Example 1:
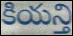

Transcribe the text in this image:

కియన్తి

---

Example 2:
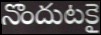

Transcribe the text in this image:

నొందుటకై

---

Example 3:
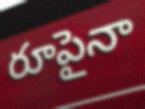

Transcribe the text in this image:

రూపైనా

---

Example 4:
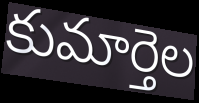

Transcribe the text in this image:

కుమార్తెల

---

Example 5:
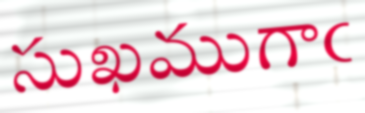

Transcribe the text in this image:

సుఖముగాఁ